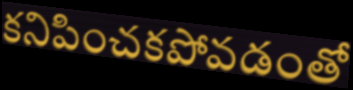
కనిపించకపోవడంతో